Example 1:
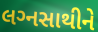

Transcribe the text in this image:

લગ્‍નસાથીને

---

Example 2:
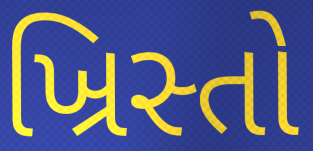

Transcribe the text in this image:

ખ્રિસ્તો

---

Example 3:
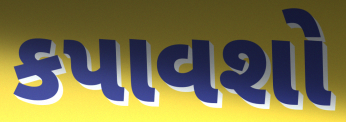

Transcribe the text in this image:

કપાવશો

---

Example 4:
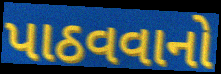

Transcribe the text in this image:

પાઠવવાનો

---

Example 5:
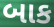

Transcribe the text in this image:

બાક